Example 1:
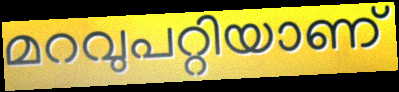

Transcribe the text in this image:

മറവുപറ്റിയാണ്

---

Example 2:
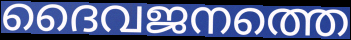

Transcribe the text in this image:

ദൈവജനത്തെ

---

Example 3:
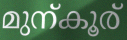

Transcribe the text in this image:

മുന്കൂര്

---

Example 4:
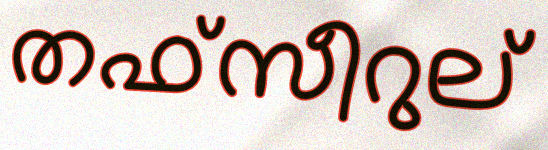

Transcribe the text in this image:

തഫ്സീറുല്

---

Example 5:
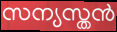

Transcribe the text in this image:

സന്യസ്തൻ